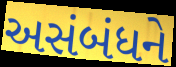
અસંબંધને